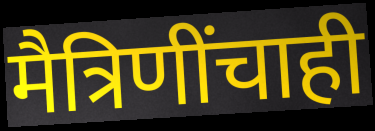
मैत्रिणींचाही